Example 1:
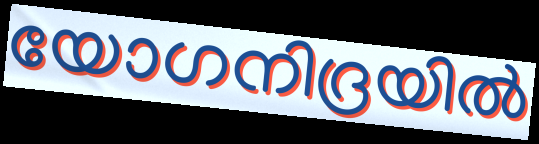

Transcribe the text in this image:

യോഗനിദ്രയിൽ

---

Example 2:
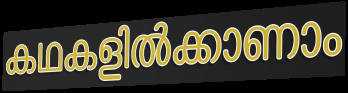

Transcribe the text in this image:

കഥകളിൽക്കാണാം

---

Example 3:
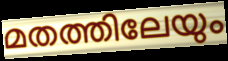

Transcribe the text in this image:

മതത്തിലേയും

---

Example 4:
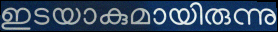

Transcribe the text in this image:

ഇടയാകുമായിരുന്നു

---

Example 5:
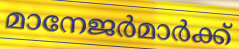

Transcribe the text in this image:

മാനേജർമാർക്ക്